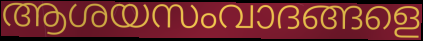
ആശയസംവാദങ്ങളെ